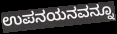
ಉಪನಯನವನ್ನೂ